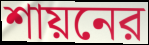
শায়নের